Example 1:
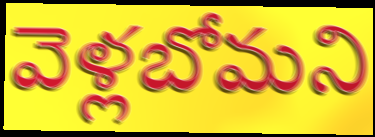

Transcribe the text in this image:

వెళ్లబోమని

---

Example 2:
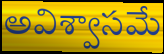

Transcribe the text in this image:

అవిశ్వాసమే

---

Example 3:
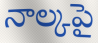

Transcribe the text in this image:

నాల్కపై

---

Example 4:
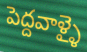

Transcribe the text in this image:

పెద్దవాళ్ళై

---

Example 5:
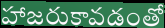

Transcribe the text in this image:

హాజరుకావడంతో